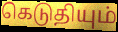
கெடுதியும்